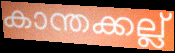
കാന്തക്കല്ല്